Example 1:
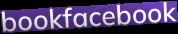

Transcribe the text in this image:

bookfacebook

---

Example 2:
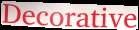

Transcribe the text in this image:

Decorative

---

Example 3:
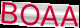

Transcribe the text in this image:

BOAA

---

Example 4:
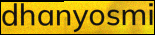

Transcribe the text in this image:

dhanyosmi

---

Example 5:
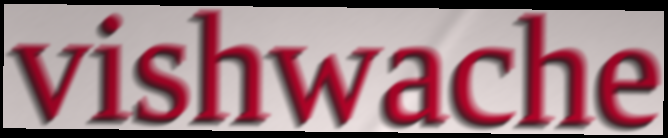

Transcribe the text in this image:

vishwache